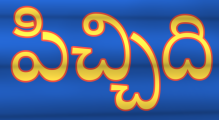
పిచ్చిది